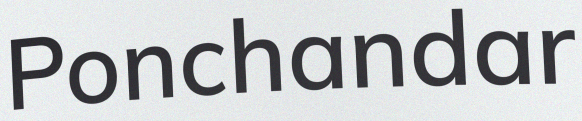
Ponchandar